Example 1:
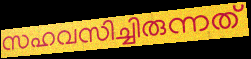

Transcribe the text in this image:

സഹവസിച്ചിരുന്നത്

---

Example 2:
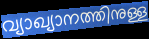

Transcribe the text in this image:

വ്യാഖ്യാനത്തിനുള്ള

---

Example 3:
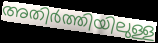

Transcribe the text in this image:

അതിർത്തിയിലുള്ള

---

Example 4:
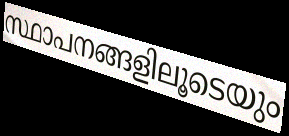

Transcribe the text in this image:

സ്ഥാപനങ്ങളിലൂടെയും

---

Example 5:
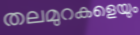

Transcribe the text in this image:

തലമുറകളെയും